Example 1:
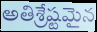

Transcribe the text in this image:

అతిశ్రేష్టమైన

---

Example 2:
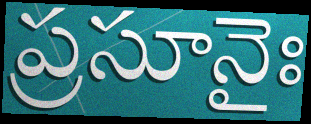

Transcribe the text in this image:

ప్రసూనైః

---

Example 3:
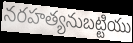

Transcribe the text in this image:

నరహత్యనుబట్టియు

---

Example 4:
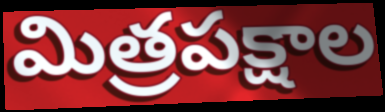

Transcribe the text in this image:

మిత్రపక్షాల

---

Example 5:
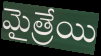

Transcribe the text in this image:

మైత్రేయి